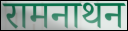
रामनाथन